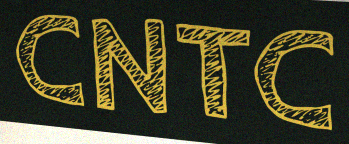
CNTC